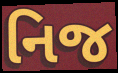
નિજ